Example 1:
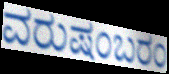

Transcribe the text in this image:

ವರುಷಂಬರಂ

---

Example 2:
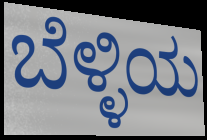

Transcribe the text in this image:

ಬೆಳ್ಳಿಯ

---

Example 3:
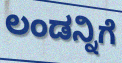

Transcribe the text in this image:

ಲಂಡನ್ನಿಗೆ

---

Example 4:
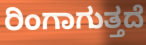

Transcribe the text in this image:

ರಿಂಗಾಗುತ್ತದೆ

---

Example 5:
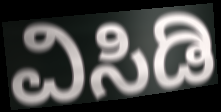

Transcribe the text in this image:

ವಿಸಿಡಿ